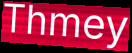
Thmey